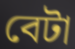
বেটা